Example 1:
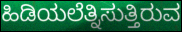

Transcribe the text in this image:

ಹಿಡಿಯಲೆತ್ನಿಸುತ್ತಿರುವ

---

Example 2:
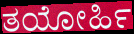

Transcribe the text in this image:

ತಯೋರ್ಹಿ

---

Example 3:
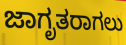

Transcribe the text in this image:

ಜಾಗೃತರಾಗಲು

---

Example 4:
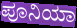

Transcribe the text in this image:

ಪೂನಿಯಾ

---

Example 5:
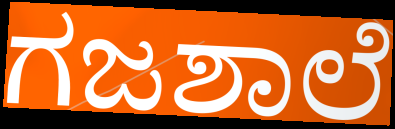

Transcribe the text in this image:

ಗಜಶಾಲೆ